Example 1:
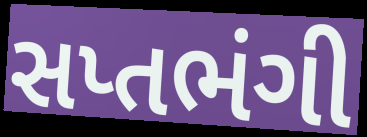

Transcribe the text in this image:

સપ્તભંગી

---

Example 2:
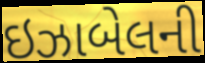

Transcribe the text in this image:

ઇઝાબેલની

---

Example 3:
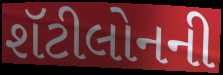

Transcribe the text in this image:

શૅટીલોનની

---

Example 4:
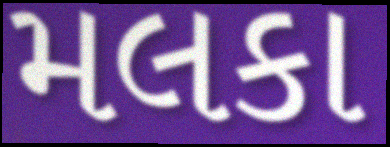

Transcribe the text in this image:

મલકા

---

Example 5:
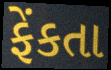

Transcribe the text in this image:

ફેંકતા